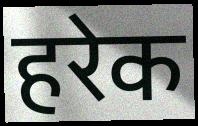
हरेक